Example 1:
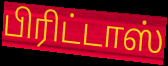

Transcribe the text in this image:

பிரிட்டாஸ்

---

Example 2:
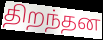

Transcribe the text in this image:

திறந்தன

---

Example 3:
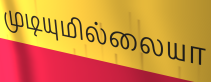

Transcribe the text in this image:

முடியுமில்லையா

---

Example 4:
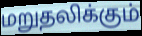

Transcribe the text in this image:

மறுதலிக்கும்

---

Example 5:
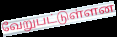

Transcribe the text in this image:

வேறுபட்டுள்ளன